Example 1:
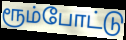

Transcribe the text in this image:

ரூம்போட்டு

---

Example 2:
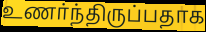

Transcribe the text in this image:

உணர்ந்திருப்பதாக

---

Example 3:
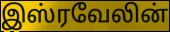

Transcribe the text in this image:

இஸ்ரவேலின்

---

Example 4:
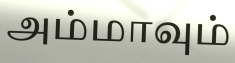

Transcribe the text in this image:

அம்மாவும்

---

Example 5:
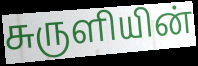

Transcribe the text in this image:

சுருளியின்